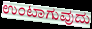
ಉಂಟಾಗುವುದು